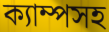
ক্যাম্পসহ